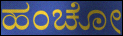
ಹಂಚೋ